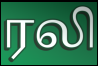
ரலி